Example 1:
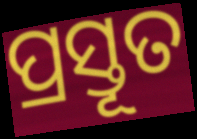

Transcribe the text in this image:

ପ୍ରସ୍ତୂତ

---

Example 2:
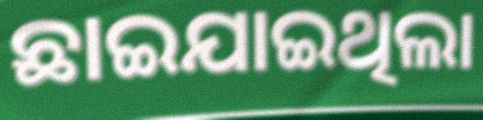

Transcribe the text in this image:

ଛାଇଯାଇଥିଲା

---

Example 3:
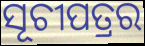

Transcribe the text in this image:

ସୂଚୀପତ୍ରର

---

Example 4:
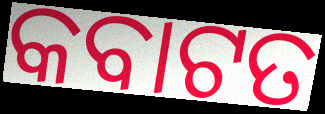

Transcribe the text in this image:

କବାଟତ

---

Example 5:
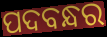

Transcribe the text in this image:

ପଦବନ୍ଧର